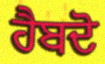
ਹੈਬਦੋ